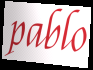
pablo